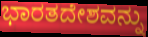
ಭಾರತದೇಶವನ್ನು